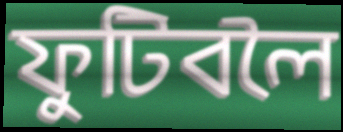
ফুটিবলৈ